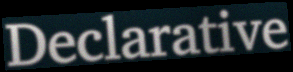
Declarative